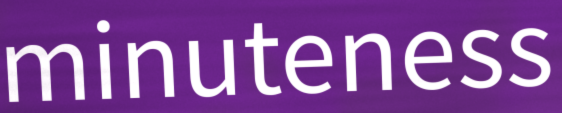
minuteness